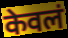
केवलं